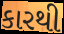
કારથી